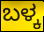
ಬಳ್ಕ